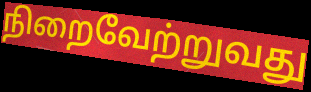
நிறைவேற்றுவது